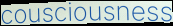
cousciousness